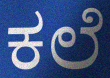
ಕಲೆ